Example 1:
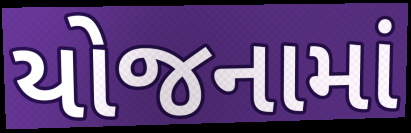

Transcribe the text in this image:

યોજનામાં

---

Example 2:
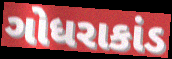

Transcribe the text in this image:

ગોધરાકાંડ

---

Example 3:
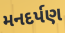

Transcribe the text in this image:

મનદર્પણ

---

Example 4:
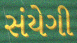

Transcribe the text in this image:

સંયેગી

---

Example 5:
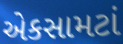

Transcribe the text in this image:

એકસામટાં